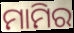
ମାମିର